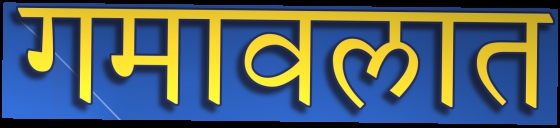
गमावलात